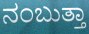
ನಂಬುತ್ತಾ